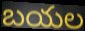
బయల